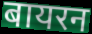
बायरन